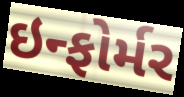
ઇન્ફોર્મર